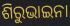
ଶିରୁଭାଇନା